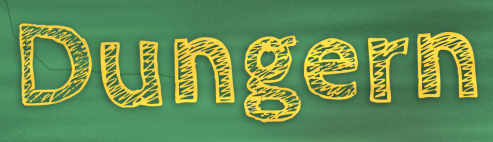
Dungern